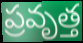
ప్రవృత్త